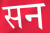
सन